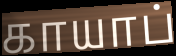
காயாப்